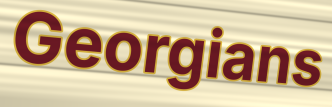
Georgians